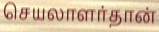
செயலாளர்தான்